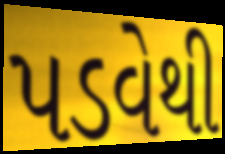
પડવેથી